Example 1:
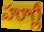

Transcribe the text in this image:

హూగ్లీ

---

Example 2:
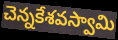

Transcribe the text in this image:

చెన్నకేశవస్వామి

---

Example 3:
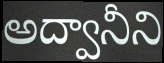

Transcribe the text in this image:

అద్వానీని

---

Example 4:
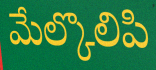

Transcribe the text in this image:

మేల్కొలిపి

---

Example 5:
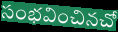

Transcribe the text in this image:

సంభవించినచో